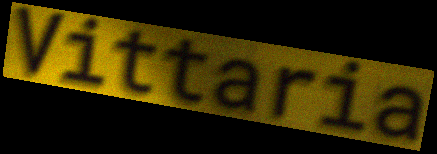
Vittaria